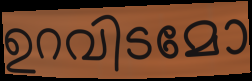
ഉറവിടമോ